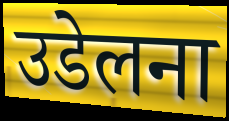
उडेलना